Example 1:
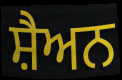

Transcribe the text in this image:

ਸ਼ੈਅਨ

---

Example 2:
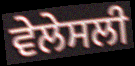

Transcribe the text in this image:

ਵੇਲੇਸਲੀ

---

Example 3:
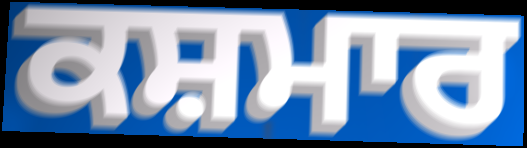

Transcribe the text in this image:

ਕਸ਼ਮਾਰ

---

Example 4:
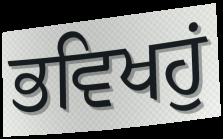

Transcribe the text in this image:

ਭਵਿਖਹੁਂ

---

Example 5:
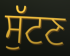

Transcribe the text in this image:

ਸੁੱਟਣ